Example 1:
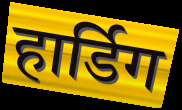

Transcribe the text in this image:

हार्डिग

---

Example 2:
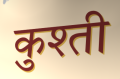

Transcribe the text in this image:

कुश्‍ती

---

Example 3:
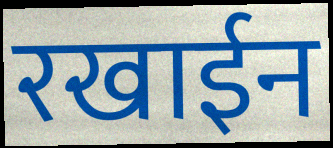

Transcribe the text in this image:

रखाईन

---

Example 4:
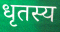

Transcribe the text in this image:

धृतस्य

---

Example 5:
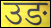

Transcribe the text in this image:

उङ